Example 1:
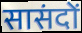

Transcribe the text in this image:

सासंदों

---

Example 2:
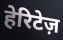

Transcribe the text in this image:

हेरिटेज़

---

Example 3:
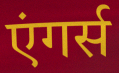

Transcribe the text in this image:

एंगर्स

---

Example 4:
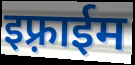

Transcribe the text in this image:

इफ़्राईम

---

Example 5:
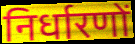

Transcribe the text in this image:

निर्धारणों